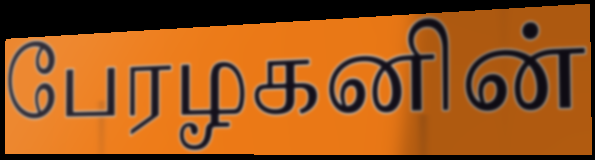
பேரழகனின்